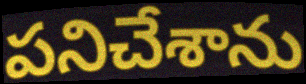
పనిచేశాను